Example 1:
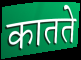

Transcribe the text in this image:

कातते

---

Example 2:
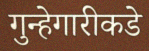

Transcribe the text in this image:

गुन्हेगारीकडे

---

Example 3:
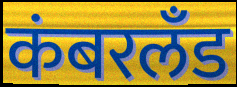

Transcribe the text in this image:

कंबरलँड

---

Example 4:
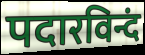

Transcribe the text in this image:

पदारविन्दं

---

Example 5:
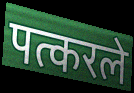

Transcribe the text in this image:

पत्करले